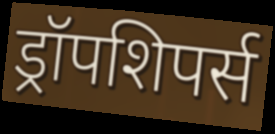
ड्रॉपशिपर्स